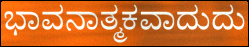
ಭಾವನಾತ್ಮಕವಾದುದು